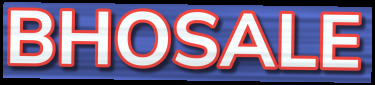
BHOSALE